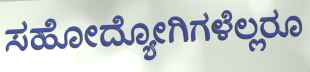
ಸಹೋದ್ಯೋಗಿಗಳೆಲ್ಲರೂ